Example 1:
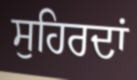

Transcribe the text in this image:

ਸੁਹਿਰਦਾਂ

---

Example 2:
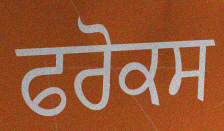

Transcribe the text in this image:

ਫਰੋਕਸ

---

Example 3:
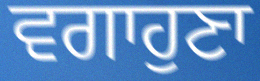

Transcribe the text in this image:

ਵਗਾਹੁਣਾ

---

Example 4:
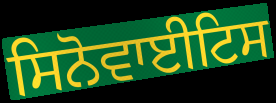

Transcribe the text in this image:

ਸਿਨੋਵਾਈਟਿਸ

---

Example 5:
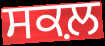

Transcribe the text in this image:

ਸਕਲ਼